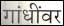
गांधींवर